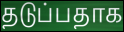
தடுப்பதாக